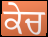
ਕੇਚ